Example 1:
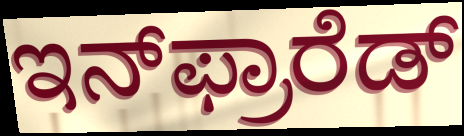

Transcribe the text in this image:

ಇನ್‌ಫ್ರಾರೆಡ್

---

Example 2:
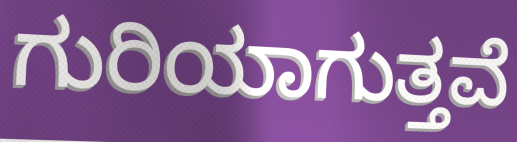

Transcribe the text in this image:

ಗುರಿಯಾಗುತ್ತವೆ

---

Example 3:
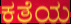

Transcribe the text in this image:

ಕತೆಯ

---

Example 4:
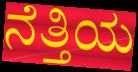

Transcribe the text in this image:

ನೆತ್ತಿಯ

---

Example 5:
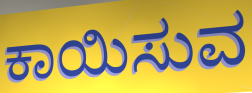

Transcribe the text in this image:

ಕಾಯಿಸುವ